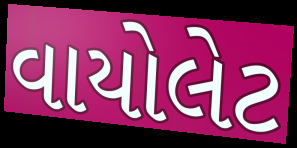
વાયોલેટ